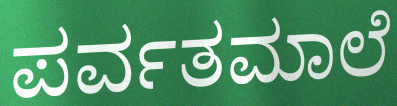
ಪರ್ವತಮಾಲೆ